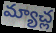
మ్యాచ్ల